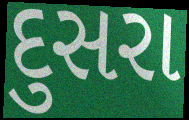
દુસરા